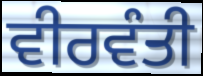
ਵੀਰਵੰਤੀ